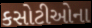
કસોટીઓના